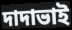
দাদাভাই